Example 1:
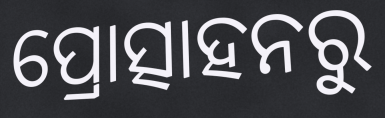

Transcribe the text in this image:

ପ୍ରୋତ୍ସାହନରୁ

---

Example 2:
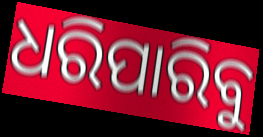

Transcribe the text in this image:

ଧରିପାରିବୁ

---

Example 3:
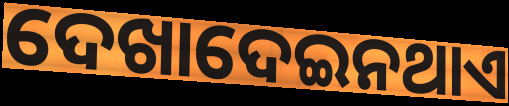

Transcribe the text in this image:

ଦେଖାଦେଇନଥାଏ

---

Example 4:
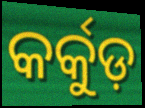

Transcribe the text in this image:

କର୍କୁଡ଼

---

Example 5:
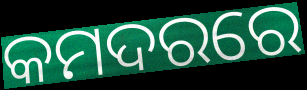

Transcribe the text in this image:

କମଦରରେ